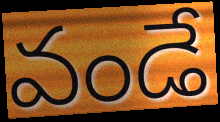
వండే